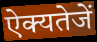
ऐक्यतेजें